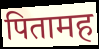
पितामह